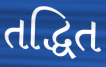
તદ્ધિત